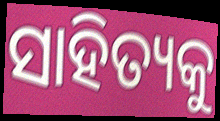
ସାହିତ୍ୟକୁ